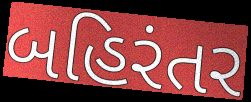
બહિરંતર